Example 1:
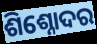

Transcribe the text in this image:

ଶିଶ୍ନୋଦର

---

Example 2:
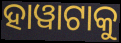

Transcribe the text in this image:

ହାୱାଟାକୁ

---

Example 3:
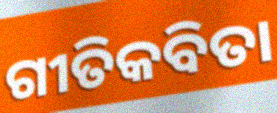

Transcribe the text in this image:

ଗୀତିକବିତା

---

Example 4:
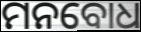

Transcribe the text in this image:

ମନବୋଧ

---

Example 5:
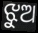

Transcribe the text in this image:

ଝୁଅ